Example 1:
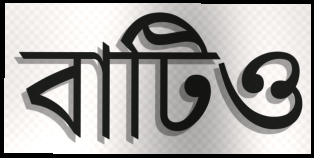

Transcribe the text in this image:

বাটিও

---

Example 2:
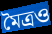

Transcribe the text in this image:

মৈত্রও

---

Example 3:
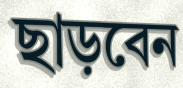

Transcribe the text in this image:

ছাড়বেন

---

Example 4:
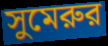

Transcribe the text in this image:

সুমেরুর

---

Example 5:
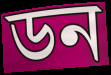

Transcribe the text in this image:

ডন